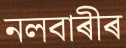
নলবাৰীৰ